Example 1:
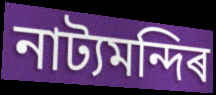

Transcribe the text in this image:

নাট্যমন্দিৰ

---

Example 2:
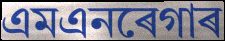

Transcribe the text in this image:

এমএনৰেগাৰ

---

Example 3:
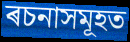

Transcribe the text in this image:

ৰচনাসমূহত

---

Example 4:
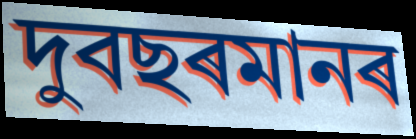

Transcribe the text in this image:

দুবছৰমানৰ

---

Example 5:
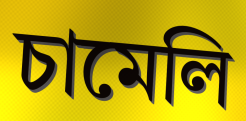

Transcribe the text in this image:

চামেলি